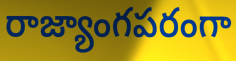
రాజ్యాంగపరంగా